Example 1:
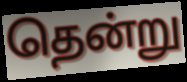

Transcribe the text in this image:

தென்று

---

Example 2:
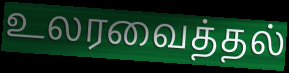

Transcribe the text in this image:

உலரவைத்தல்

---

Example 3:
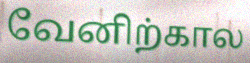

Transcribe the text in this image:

வேனிற்கால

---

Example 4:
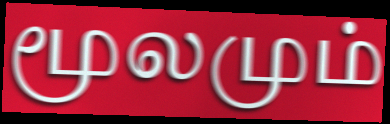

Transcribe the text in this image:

மூலமும்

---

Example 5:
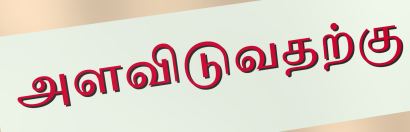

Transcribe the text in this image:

அளவிடுவதற்கு